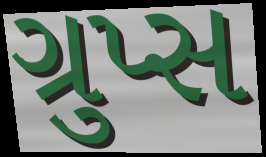
ગ્રુપ્સ